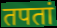
तपतां